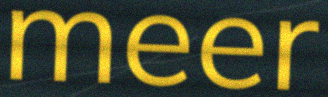
meer